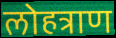
लोहत्राण